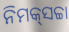
ନିମକ୍‍ସଚ୍ଚା